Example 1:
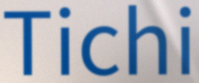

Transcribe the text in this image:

Tichi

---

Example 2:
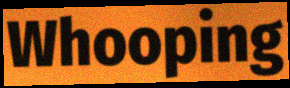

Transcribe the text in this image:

Whooping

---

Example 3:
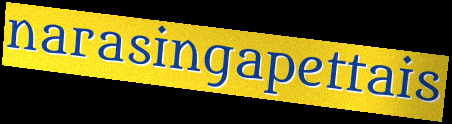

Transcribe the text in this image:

narasingapettais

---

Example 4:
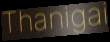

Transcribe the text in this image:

Thanigai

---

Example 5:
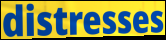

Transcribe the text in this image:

distresses